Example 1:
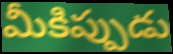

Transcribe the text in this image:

మీకిప్పుడు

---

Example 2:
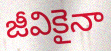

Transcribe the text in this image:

జీవికైనా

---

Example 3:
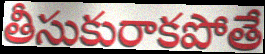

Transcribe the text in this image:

తీసుకురాకపోతే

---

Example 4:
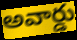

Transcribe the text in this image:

అవార్డు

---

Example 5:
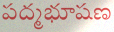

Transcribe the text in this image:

పద్మభూషణ